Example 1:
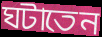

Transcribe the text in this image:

ঘটাতেন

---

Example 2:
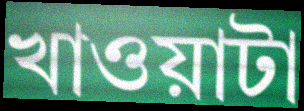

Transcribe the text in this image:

খাওয়াটা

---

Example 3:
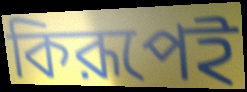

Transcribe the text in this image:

কিরূপেই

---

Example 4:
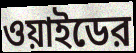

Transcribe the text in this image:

ওয়াইডের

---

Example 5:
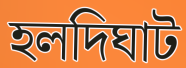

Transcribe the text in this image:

হলদিঘাট